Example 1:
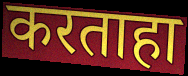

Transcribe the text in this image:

करताहा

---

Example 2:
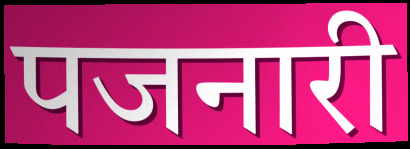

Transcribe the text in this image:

पजनारी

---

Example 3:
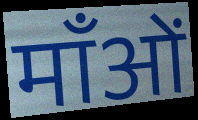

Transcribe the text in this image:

माँओं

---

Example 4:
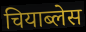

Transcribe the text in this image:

चियाब्लेस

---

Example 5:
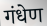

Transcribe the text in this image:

गंधेण